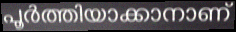
പൂർത്തിയാക്കാനാണ്